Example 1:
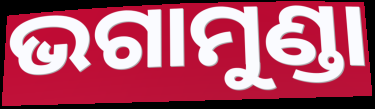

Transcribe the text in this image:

ଭଗାମୁଣ୍ଡା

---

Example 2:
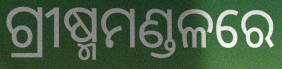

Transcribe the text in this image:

ଗ୍ରୀଷ୍ମମଣ୍ଡଳରେ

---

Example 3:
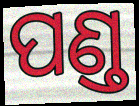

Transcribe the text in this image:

ପଣ୍ଡ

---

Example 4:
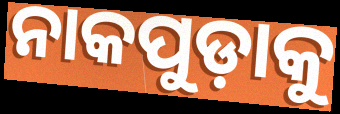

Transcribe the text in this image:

ନାକପୁଡ଼ାକୁ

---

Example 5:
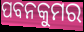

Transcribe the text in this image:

ପବନକୁମର